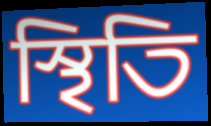
স্থিতি